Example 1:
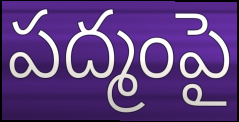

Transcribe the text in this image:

పద్మంపై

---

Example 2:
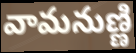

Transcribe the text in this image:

వామనుణ్ణి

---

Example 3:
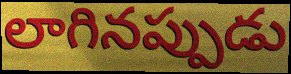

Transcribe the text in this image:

లాగినప్పుడు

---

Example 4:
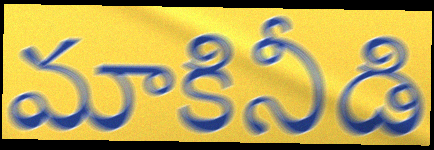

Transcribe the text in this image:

మాకినీడి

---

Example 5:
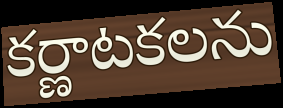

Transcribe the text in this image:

కర్ణాటకలను